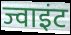
ज्वाइंट